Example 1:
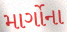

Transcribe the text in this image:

માર્ગોના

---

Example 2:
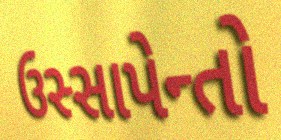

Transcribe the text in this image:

ઉસ્સાપેન્તો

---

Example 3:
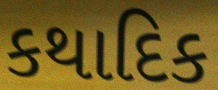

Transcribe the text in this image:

કથાદિક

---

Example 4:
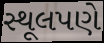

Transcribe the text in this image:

સ્થૂલપણે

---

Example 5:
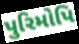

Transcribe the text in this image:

પુરિમોપિ